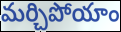
మర్చిపోయాం